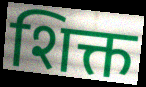
शिक्त